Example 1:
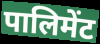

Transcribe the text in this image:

पालिमेंट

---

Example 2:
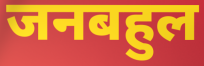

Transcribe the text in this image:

जनबहुल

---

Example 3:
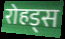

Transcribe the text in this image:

रोहड्स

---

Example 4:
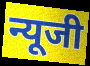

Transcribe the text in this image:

न्यूजी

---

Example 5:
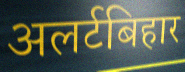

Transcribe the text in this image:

अलर्टबिहार